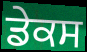
ਡੇਕਸ